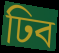
ঢিব